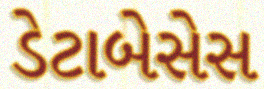
ડેટાબેસેસ